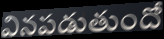
వినపడుతుందో